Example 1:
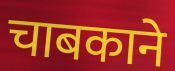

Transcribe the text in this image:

चाबकाने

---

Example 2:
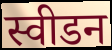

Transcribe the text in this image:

स्वीडन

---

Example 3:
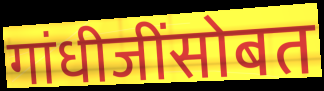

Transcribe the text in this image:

गांधीजींसोबत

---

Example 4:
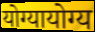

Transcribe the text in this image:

योग्यायोग्य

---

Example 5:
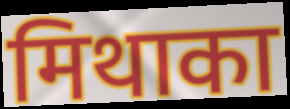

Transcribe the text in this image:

मिथाका